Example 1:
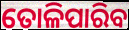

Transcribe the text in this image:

ତୋଳିପାରିବ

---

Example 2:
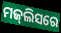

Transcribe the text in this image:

ମଜ୍‍ଲିସରେ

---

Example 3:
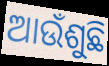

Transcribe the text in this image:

ଆଉଁଶୁଛି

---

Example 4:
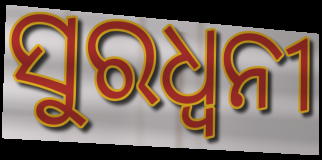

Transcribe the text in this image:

ସୁରଧ୍ୱନୀ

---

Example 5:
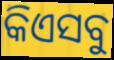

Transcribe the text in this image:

କିଏସବୁ